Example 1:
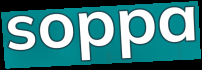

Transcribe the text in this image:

soppa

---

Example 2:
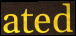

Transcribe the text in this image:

ated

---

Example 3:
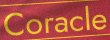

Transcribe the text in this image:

Coracle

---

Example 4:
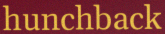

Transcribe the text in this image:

hunchback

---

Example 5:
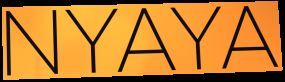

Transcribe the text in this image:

NYAYA